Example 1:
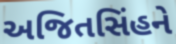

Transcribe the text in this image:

અજિતસિંહને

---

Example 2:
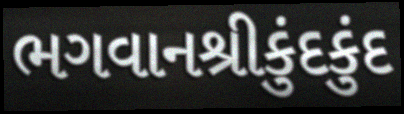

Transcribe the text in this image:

ભગવાનશ્રીકુંદકુંદ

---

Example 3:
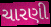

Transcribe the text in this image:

ચારણી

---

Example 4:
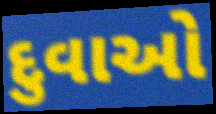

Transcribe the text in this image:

દુવાઓ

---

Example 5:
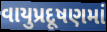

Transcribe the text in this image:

વાયુપ્રદૂષણમાં